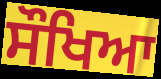
ਸੌਖਿਆ